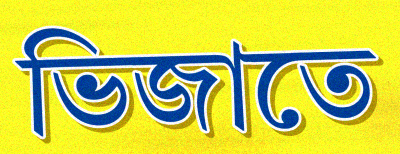
ভিজাতে